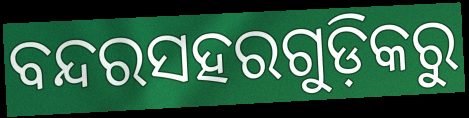
ବନ୍ଦରସହରଗୁଡ଼ିକରୁ